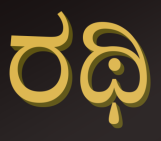
ರಥಿ